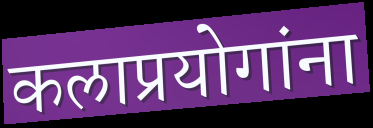
कलाप्रयोगांना